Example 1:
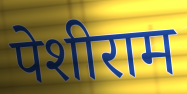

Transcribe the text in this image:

पेशीराम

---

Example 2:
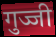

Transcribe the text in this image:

गुज्जी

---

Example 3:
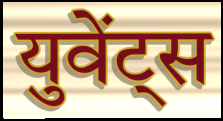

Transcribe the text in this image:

युवेंट्स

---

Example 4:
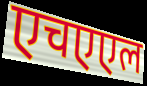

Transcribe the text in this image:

एचएएल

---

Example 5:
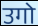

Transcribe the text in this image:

उगो